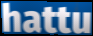
hattu